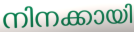
നിനക്കായി